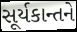
સૂર્યકાન્તને